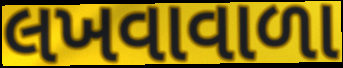
લખવાવાળા